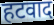
हटवाद